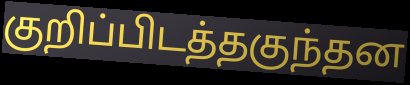
குறிப்பிடத்தகுந்தன